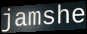
jamshe